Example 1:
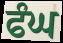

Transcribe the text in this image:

ਫੰਘ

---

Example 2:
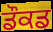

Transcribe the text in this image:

ਡੌਕਡ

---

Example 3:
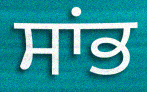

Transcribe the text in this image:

ਸਾਂਭ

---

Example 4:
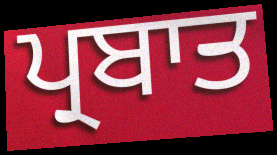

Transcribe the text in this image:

ਪ੍ਰਬਾਤ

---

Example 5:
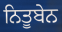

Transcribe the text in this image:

ਨਿਤੂਬੇਨ